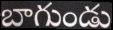
బాగుండు